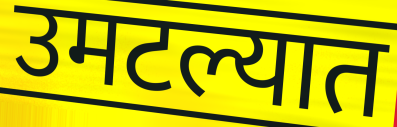
उमटल्यात